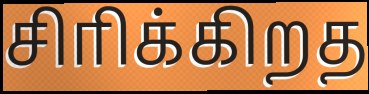
சிரிக்கிறத